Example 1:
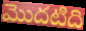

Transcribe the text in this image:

మొదటిది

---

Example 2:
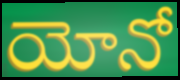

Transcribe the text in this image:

యోనో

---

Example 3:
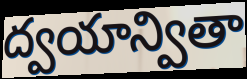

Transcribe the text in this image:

ద్వయాన్వితా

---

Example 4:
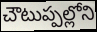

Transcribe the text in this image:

చౌటుప్పల్లోని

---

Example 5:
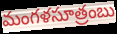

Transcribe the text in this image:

మంగళసూత్రంబు